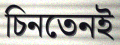
চিনতেনই